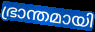
ഭ്രാന്തമായി